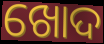
ଖୋଦ